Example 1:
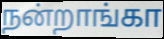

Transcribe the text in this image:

நன்றாங்கா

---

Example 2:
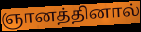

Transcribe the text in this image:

ஞானத்தினால்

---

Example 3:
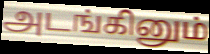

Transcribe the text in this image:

அடங்கினும்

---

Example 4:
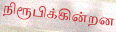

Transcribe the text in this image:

நிரூபிக்கின்றன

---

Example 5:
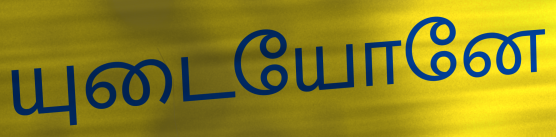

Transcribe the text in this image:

யுடையோனே